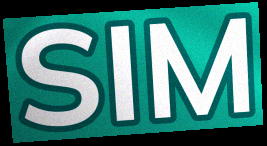
SIM